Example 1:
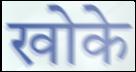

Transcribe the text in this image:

खोके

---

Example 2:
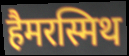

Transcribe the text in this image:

हैमरस्मिथ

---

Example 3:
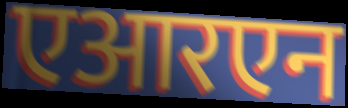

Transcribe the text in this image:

एआरएन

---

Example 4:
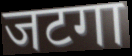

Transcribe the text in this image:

जटगा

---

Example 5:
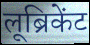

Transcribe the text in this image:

लूब्रिकेंट